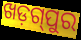
ଖଡ଼ଗ୍‌ପୁର